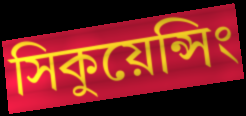
সিকুয়েন্সিং